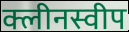
क्लीनस्वीप